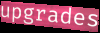
upgrades